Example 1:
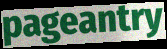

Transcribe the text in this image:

pageantry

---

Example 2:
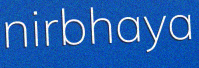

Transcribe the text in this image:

nirbhaya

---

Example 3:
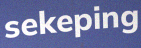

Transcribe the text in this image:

sekeping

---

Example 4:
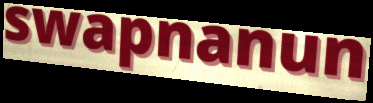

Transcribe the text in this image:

swapnanun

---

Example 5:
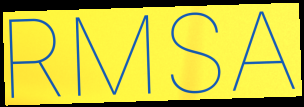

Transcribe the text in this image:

RMSA